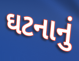
ઘટનાનું